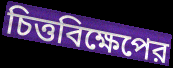
চিত্তবিক্ষেপের